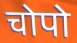
चोपो